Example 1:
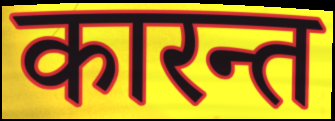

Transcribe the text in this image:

कारन्त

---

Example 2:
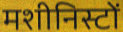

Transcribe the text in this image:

मशीनिस्टों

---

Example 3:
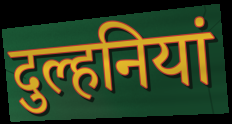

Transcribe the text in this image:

दुल्हनियां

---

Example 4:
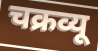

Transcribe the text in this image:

चक्रव्यू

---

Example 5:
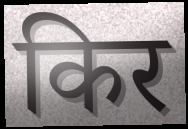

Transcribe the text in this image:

किर